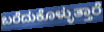
ಬರೆದುಕೊಳ್ಳುತ್ತಾರೆ